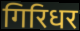
गिरिधर